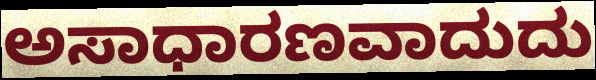
ಅಸಾಧಾರಣವಾದುದು